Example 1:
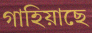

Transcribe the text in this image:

গাহিয়াছে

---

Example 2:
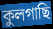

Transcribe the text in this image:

কুলগাছি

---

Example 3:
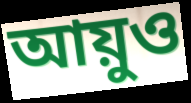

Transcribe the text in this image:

আয়ুও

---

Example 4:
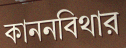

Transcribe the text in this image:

কাননবিথার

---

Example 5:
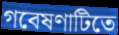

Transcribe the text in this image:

গবেষণাটিতে